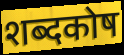
शब्दकोष